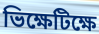
ভিক্ষেটিক্ষে